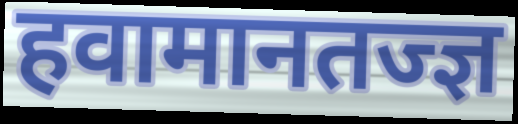
हवामानतज्ज्ञ